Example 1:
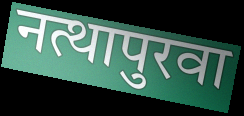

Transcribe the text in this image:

नत्थापुरवा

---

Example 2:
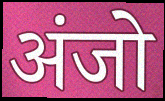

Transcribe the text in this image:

अंजो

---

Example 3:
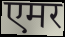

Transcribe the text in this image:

एमर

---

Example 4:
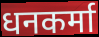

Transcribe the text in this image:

धनकर्मा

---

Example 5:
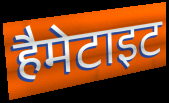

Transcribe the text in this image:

हैमेटाइट